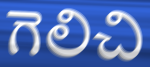
గెలిచి